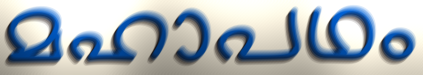
മഹാപഥം